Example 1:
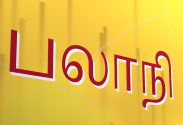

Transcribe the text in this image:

பலாநி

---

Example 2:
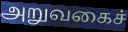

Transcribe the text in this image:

அறுவகைச்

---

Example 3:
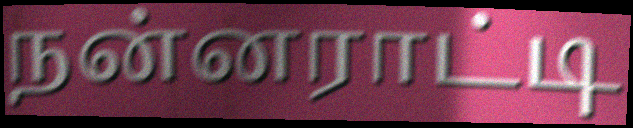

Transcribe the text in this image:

நன்னராட்டி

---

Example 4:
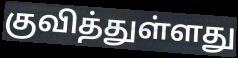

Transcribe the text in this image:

குவித்துள்ளது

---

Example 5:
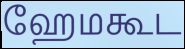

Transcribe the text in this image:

ஹேமகூட